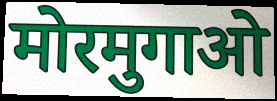
मोरमुगाओ